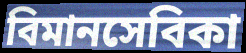
বিমানসেবিকা